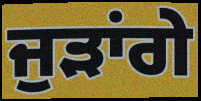
ਜੁੜਾਂਗੇ